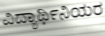
ವಿದ್ಯಾರ್ಥಿನಿಯರ